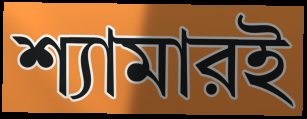
শ্যামারই